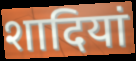
शादियां